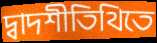
দ্বাদশীতিথিতে